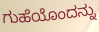
ಗುಹೆಯೊಂದನ್ನು